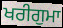
ਖਰੀਗੁਮਾ